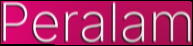
Peralam